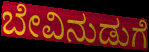
ಬೇವಿನುಡುಗೆ